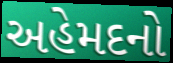
અહેમદનો